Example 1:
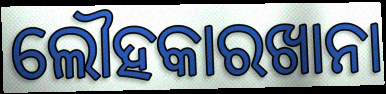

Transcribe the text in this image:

ଲୌହକାରଖାନା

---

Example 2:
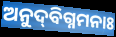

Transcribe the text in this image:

ଅନୁଦ୍‌ବିଗ୍ନମନାଃ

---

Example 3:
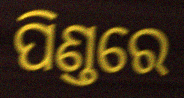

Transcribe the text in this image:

ପିଣ୍ଡରେ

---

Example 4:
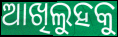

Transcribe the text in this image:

ଆଖିଲୁହକୁ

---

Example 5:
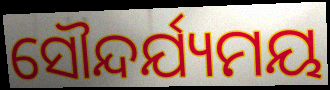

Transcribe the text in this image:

ସୌନ୍ଦର୍ଯ୍ୟମୟ